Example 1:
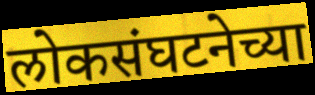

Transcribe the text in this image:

लोकसंघटनेच्या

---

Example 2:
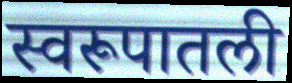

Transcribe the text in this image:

स्वरूपातली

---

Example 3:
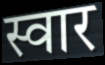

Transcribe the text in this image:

स्वार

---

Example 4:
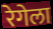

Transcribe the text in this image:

रेगेला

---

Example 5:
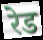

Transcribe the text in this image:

रेड